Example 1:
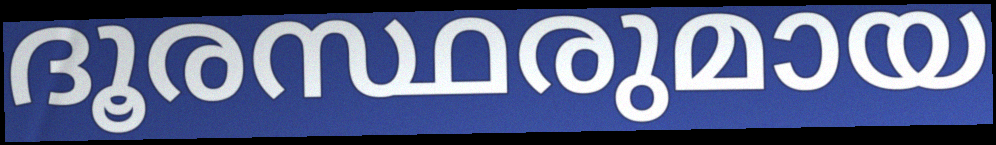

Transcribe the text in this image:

ദൂരസ്ഥരുമായ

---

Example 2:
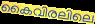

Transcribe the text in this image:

കൈവിരലിലെ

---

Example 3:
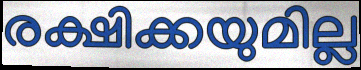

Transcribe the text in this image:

രക്ഷിക്കയുമില്ല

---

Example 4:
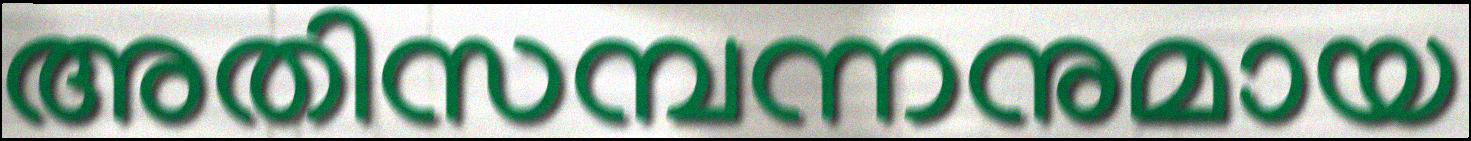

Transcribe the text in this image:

അതിസമ്പന്നനുമായ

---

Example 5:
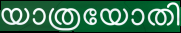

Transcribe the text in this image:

യാത്രയോതി